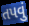
તપવું